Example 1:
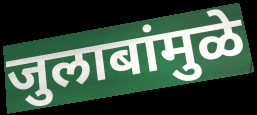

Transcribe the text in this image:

जुलाबांमुळे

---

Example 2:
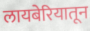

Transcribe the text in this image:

लायबेरियातून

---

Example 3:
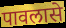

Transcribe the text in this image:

पावलासे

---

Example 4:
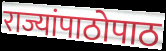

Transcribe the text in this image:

राज्यांपाठोपाठ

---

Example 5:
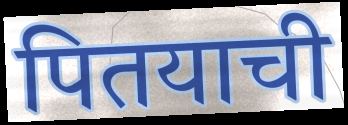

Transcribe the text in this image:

पितयाची